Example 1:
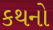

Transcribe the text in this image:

કથનો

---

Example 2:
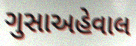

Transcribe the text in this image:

ગુસાઅહેવાલ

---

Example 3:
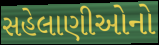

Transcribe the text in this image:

સહેલાણીઓનો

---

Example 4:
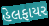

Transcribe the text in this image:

હેલફાયર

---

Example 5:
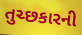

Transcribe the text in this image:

તુચ્છકારની